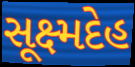
સૂક્ષ્મદેહ